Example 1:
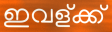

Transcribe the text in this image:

ഇവള്ക്ക്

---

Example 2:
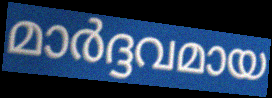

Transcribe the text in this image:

മാർദ്ദവമായ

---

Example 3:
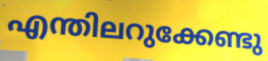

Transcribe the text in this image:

എന്തിലറുക്കേണ്ടു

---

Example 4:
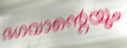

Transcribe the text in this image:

ഭഗവാന്റെയും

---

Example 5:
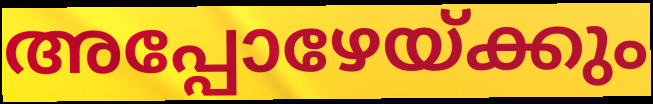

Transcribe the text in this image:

അപ്പോഴേയ്ക്കും